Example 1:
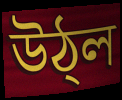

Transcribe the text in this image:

উঠ্ল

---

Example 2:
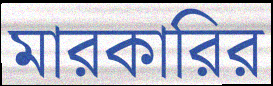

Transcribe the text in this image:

মারকারির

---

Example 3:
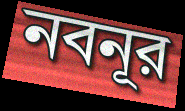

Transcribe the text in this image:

নবনূর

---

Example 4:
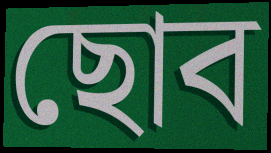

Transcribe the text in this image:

ছোব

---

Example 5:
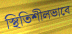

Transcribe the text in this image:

স্থিতিশীলভাবে